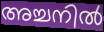
അച്ചനിൽ